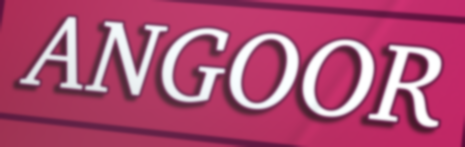
ANGOOR